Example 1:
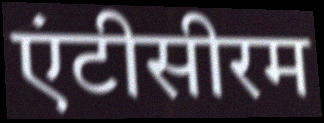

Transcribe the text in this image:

एंटीसीरम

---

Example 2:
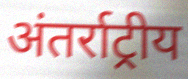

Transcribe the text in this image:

अंतर्राट्रीय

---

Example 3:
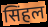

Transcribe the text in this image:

सिंहल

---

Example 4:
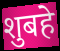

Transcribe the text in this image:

शुबहे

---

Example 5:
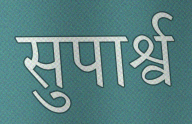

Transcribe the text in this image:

सुपार्श्व